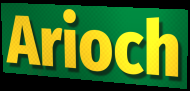
Arioch